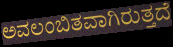
ಅವಲಂಬಿತವಾಗಿರುತ್ತದೆ